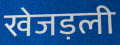
खेजड़ली